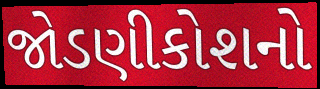
જોડણીકોશનો